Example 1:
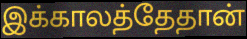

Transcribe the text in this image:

இக்காலத்தேதான்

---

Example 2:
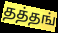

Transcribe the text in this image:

தத்தங்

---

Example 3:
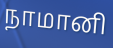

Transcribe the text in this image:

நாமானி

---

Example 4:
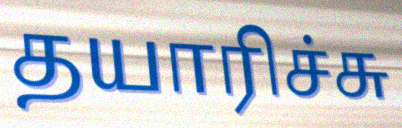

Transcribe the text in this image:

தயாரிச்சு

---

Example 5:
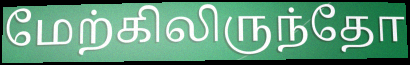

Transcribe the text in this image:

மேற்கிலிருந்தோ